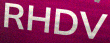
RHDV